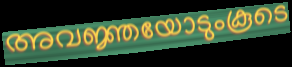
അവജ്ഞയോടുംകൂടെ